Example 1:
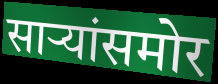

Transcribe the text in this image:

साऱ्यांसमोर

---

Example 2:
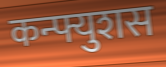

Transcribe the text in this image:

कन्फ्युशस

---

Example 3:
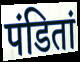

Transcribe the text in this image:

पंडितां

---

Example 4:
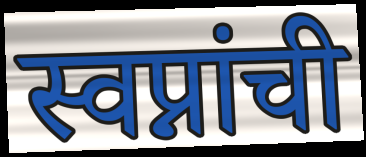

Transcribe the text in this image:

स्वप्नांची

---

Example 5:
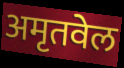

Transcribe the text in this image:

अमृतवेल